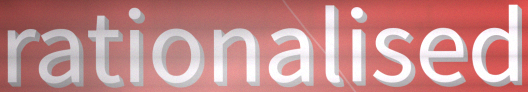
rationalised